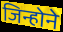
जिन्‍होने